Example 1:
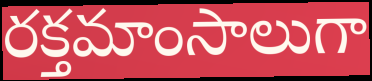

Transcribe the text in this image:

రక్తమాంసాలుగా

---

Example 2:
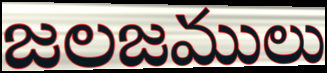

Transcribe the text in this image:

జలజములు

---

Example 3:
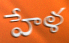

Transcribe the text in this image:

హేళ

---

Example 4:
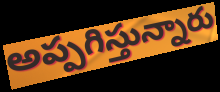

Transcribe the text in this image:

అప్పగిస్తున్నారు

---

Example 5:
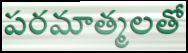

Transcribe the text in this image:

పరమాత్మలతో